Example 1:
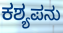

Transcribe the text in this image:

ಕಶ್ಯಪನು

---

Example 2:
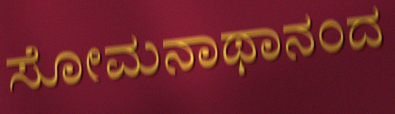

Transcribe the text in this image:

ಸೋಮನಾಥಾನಂದ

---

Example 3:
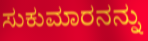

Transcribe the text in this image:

ಸುಕುಮಾರನನ್ನು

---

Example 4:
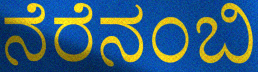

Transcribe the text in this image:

ನೆರೆನಂಬಿ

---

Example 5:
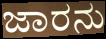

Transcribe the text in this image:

ಜಾರನು